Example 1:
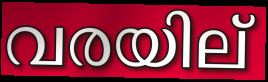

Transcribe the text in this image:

വരയില്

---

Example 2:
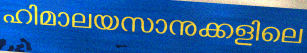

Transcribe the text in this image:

ഹിമാലയസാനുക്കളിലെ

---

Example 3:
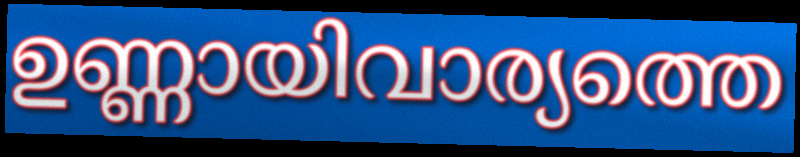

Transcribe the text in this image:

ഉണ്ണായിവാര്യത്തെ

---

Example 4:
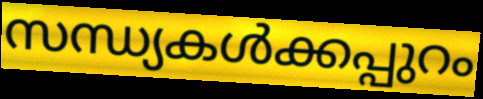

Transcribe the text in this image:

സന്ധ്യകൾക്കപ്പുറം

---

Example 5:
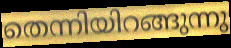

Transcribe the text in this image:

തെന്നിയിറങ്ങുന്നു